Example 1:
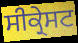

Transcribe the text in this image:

ਸੀਕ੍ਰੇਸਟ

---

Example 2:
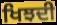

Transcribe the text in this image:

ਖਿਝਦੀ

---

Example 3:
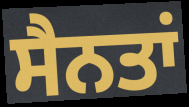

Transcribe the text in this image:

ਸੈਨਤਾਂ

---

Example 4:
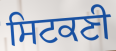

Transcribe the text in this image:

ਸਿਟਕਣੀ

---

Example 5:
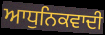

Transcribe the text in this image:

ਆਧੁਨਿਕਵਾਦੀ